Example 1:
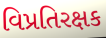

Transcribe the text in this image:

વિપ્રતિરક્ષક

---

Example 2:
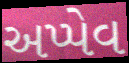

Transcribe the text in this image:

અપ્પેવ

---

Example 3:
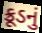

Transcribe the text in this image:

ક્રૂડનું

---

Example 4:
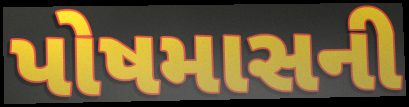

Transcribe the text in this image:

પોષમાસની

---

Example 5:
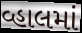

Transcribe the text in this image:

વ્હાલમાં